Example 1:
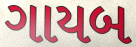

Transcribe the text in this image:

ગાયબ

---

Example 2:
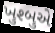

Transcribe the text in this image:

ખુશ્બુએ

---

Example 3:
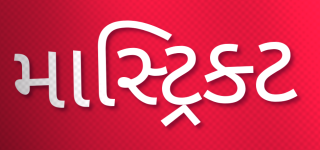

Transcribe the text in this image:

માસ્ટ્રિક્ટ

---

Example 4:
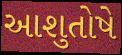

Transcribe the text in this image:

આશુતોષે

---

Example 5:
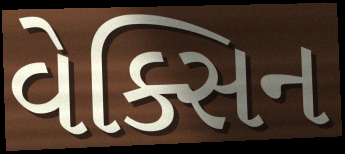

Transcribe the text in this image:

વેક્સિન